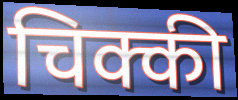
चिक्की